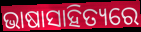
ଭାଷାସାହିତ୍ୟରେ